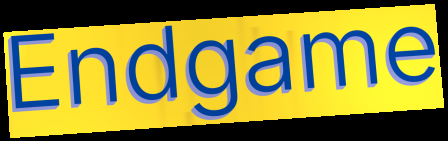
Endgame